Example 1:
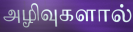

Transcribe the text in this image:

அழிவுகளால்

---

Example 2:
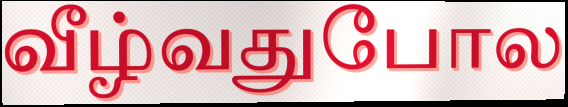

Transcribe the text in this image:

வீழ்வதுபோல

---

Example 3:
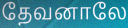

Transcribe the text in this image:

தேவனாலே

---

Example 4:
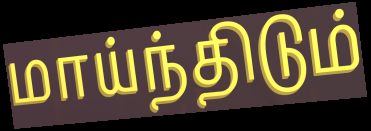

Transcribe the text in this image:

மாய்ந்திடும்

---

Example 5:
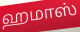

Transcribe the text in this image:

ஹமாஸ்